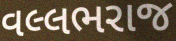
વલ્લભરાજ